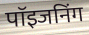
पॉइजनिंग